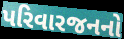
પરિવારજનનો